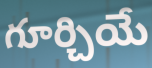
గూర్చియే